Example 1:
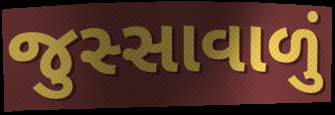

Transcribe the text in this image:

જુસ્સાવાળું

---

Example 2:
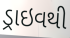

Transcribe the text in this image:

ડ્રાઇવથી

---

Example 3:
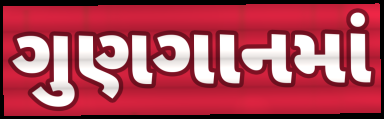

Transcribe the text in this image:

ગુણગાનમાં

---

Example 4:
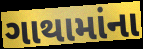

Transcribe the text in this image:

ગાથામાંના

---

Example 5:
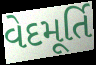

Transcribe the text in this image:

વેદમૂર્તિ